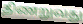
திணறுவது